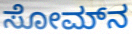
ಸೋಮ್‍ನ